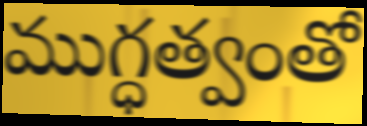
ముగ్ధత్వంతో